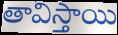
తావిస్తాయి